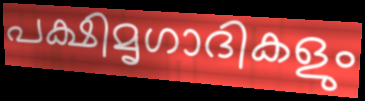
പക്ഷിമൃഗാദികളും